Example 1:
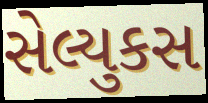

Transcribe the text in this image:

સેલ્યુકસ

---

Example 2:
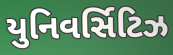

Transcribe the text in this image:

યુનિવર્સિટિઝ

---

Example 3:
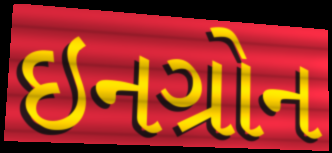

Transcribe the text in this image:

ઇનગ્રોન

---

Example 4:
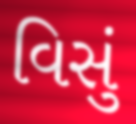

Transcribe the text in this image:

વિસું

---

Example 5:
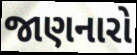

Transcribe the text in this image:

જાણનારો